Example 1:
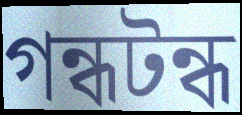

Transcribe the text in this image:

গন্ধটন্ধ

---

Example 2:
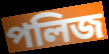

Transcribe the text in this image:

পলিজ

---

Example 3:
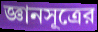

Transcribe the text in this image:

জ্ঞানসূত্রের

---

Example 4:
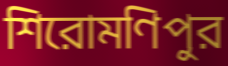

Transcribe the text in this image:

শিরোমণিপুর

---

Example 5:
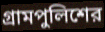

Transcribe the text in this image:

গ্রামপুলিশের